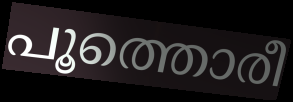
പൂത്തൊരീ